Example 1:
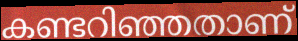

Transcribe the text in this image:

കണ്ടറിഞ്ഞതാണ്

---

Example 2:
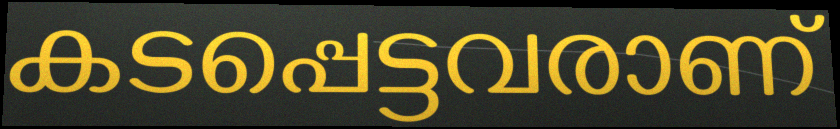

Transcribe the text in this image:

കടപ്പെട്ടവരാണ്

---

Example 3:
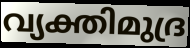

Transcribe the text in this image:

വ്യക്തിമുദ്ര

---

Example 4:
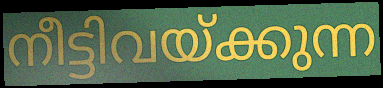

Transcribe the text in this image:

നീട്ടിവയ്ക്കുന്ന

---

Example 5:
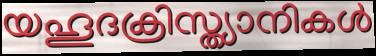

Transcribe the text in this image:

യഹൂദക്രിസ്ത്യാനികൾ